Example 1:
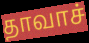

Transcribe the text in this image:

தாவாச்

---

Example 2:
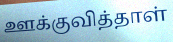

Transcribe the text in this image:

ஊக்குவித்தாள்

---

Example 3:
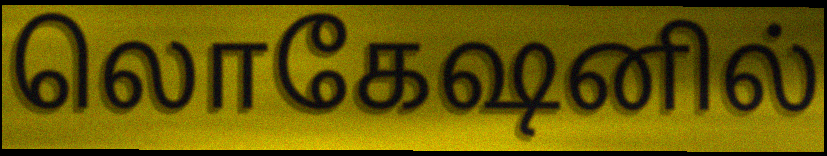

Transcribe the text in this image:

லொகேஷனில்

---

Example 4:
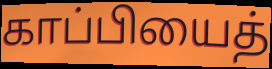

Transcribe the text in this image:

காப்பியைத்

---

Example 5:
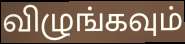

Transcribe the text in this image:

விழுங்கவும்